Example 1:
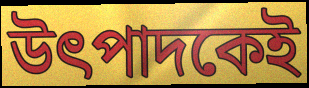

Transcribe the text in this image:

উৎপাদকেই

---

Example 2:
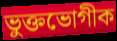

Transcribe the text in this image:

ভুক্তভোগীক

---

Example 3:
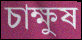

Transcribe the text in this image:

চাক্ষুষ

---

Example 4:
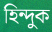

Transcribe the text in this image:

হিন্দুক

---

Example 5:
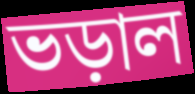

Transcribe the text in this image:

ভড়াল